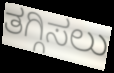
ತಗ್ಗಿಸಲು